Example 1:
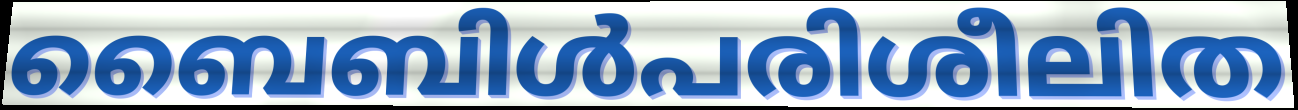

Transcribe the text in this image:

ബൈബിൾപരിശീലിത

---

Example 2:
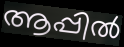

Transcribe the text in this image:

ആപ്പിൽ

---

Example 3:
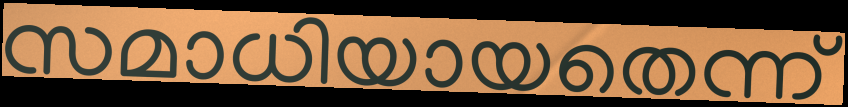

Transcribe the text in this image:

സമാധിയായതെന്ന്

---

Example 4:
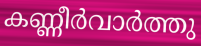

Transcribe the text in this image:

കണ്ണീർവാർത്തു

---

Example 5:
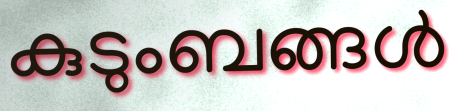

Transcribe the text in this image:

കുടുംബങ്ങൾ